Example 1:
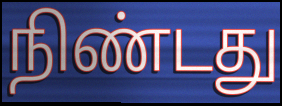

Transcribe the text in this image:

நிண்டது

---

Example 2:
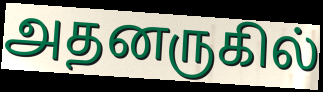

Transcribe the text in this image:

அதனருகில்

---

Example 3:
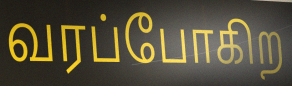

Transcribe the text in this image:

வரப்போகிற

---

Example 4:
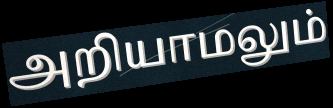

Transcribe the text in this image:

அறியாமலும்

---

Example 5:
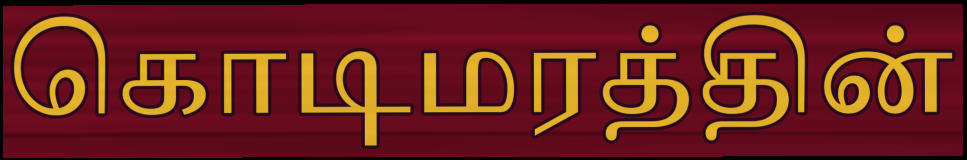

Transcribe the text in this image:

கொடிமரத்தின்